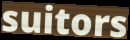
suitors